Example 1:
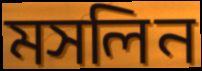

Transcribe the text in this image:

মসলিন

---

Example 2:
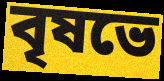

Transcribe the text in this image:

বৃষভে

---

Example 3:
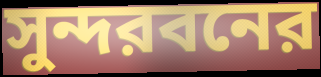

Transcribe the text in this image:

সুন্দরবনের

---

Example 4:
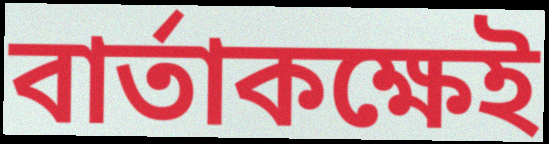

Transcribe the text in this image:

বার্তাকক্ষেই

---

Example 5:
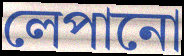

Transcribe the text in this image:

লেপানো